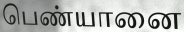
பெண்யானை